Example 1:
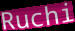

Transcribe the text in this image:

Ruchi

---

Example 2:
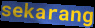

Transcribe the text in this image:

sekarang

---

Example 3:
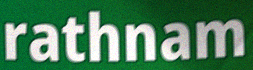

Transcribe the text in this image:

rathnam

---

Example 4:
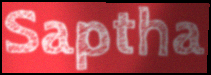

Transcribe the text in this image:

Saptha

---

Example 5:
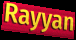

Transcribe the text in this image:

Rayyan